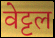
वेट्टल